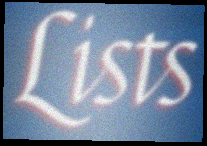
Lists